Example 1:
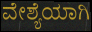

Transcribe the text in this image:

ವೇಶ್ಯೆಯಾಗಿ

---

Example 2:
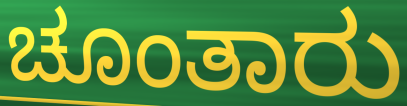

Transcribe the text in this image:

ಚೂಂತಾರು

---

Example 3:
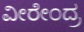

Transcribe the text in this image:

ವೀರೇಂದ್ರ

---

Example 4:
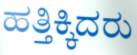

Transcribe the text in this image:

ಹತ್ತಿಕ್ಕಿದರು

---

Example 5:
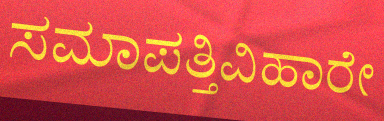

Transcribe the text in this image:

ಸಮಾಪತ್ತಿವಿಹಾರೇ